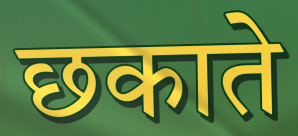
छकाते